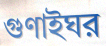
গুণাইঘর